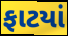
ફાટયાં